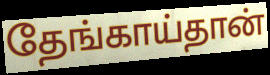
தேங்காய்தான்